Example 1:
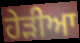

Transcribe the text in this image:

ਹੇੜੀਆ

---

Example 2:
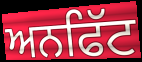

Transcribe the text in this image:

ਅਨਫਿੱਟ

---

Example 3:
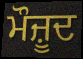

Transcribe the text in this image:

ਮੌਜ਼ੂਦ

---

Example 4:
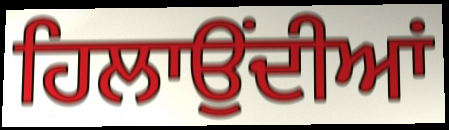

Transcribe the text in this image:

ਹਿਲਾਉਂਦੀਆਂ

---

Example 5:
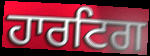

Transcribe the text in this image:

ਹਾਰਟਿਗ